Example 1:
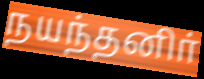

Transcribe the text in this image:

நயந்தனிர்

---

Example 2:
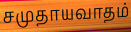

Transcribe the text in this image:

சமுதாயவாதம்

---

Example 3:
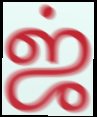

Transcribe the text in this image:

ஜ்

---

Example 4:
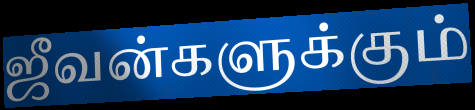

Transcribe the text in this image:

ஜீவன்களுக்கும்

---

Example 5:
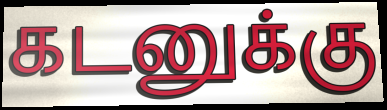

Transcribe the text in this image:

கடனுக்கு